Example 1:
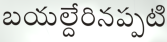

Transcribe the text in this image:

బయల్దేరినప్పటి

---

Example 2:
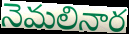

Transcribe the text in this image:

నెమలినార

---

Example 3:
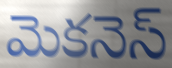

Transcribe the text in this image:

మెకనెస్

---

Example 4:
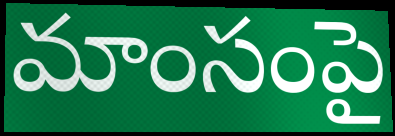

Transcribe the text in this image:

మాంసంపై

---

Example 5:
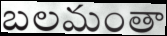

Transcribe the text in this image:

బలమంతా